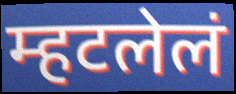
म्हटलेलं